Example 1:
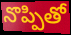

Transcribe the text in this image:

నొప్పితో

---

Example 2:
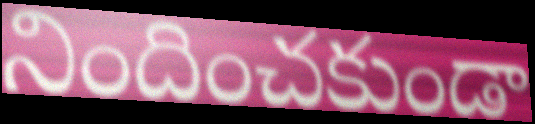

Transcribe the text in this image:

నిందించకుండా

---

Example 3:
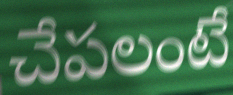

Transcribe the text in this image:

చేపలంటే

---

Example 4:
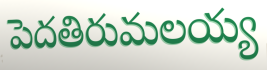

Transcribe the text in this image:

పెదతిరుమలయ్య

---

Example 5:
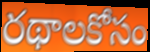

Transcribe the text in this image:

రథాలకోసం